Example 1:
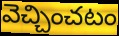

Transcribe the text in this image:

వెచ్చించటం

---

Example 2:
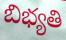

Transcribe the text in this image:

బిభ్యతి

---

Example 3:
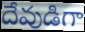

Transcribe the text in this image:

దేవుడిగా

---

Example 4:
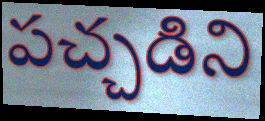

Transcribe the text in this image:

పచ్చడిని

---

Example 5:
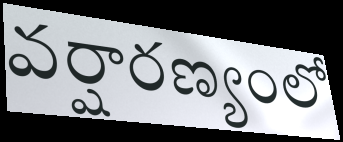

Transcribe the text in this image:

వర్షారణ్యంలో